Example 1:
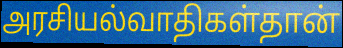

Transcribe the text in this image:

அரசியல்வாதிகள்தான்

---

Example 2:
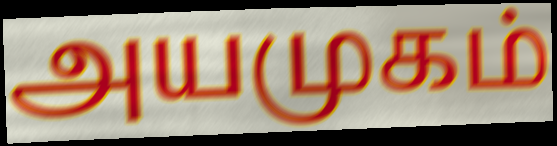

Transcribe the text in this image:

அயமுகம்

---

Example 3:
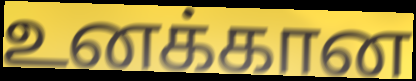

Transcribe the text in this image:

உனக்கான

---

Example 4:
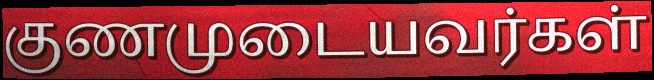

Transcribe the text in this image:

குணமுடையவர்கள்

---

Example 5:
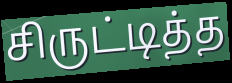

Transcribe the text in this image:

சிருட்டித்த